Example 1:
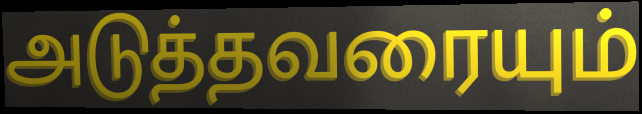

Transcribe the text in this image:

அடுத்தவரையும்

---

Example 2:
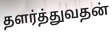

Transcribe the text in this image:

தளர்த்துவதன்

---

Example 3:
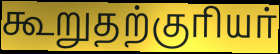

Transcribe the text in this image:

கூறுதற்குரியர்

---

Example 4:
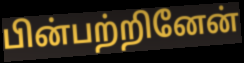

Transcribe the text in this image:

பின்பற்றினேன்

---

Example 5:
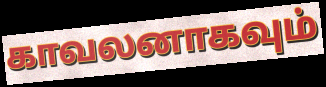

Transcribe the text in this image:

காவலனாகவும்